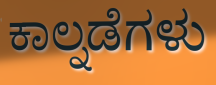
ಕಾಲ್ನಡೆಗಳು